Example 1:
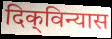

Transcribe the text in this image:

दिक्‌विन्यास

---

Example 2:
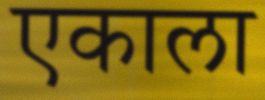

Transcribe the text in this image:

एकाला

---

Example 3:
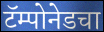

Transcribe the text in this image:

टॅम्पोनेडचा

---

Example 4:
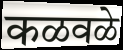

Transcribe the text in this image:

कळवळे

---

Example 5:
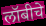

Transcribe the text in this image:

लॉबीचे